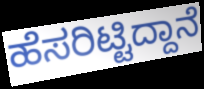
ಹೆಸರಿಟ್ಟಿದ್ದಾನೆ